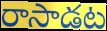
రాసాడట